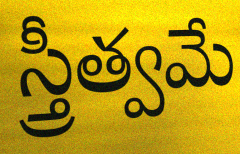
స్త్రీత్వమే